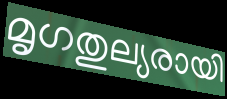
മൃഗതുല്യരായി